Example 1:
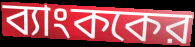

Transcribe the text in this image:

ব্যাংককের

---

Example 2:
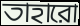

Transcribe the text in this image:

তাহারো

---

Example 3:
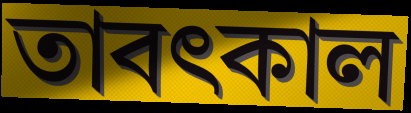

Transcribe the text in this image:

তাবৎকাল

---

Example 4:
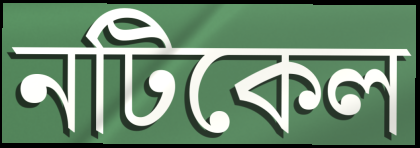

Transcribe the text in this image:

নটিকেল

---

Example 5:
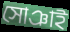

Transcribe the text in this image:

সোঞাই